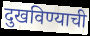
दुखविण्याची